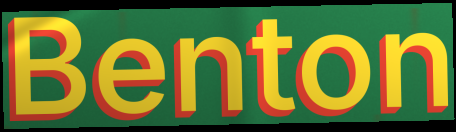
Benton